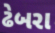
ઢેબરા